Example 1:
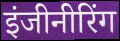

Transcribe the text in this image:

इंजीनीरिंग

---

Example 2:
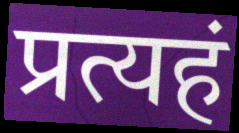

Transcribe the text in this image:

प्रत्यहं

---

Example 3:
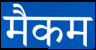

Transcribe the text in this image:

मैकम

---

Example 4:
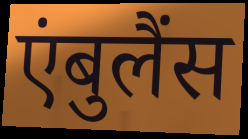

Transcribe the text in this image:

एंबुलैंस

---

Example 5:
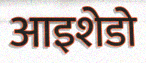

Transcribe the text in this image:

आइशेडो